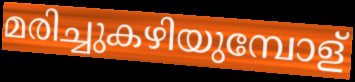
മരിച്ചുകഴിയുമ്പോള്